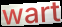
wart